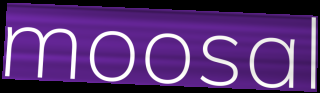
moosal